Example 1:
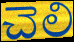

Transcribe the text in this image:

చెలి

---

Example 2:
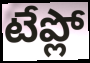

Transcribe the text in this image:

టేప్లో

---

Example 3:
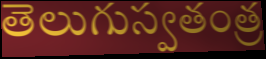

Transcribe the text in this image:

తెలుగుస్వతంత్ర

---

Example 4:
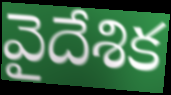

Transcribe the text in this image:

వైదేశిక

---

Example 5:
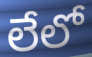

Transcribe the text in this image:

లేలో